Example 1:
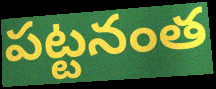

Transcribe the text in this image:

పట్టనంత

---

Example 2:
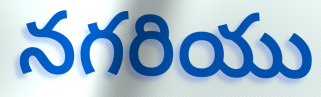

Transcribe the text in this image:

నగరియు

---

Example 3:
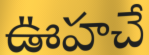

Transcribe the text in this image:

ఊహచే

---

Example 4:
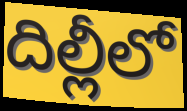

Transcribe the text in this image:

దిల్లీలో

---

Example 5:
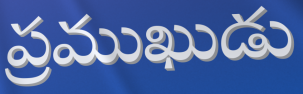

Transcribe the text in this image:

ప్రముఖుడు